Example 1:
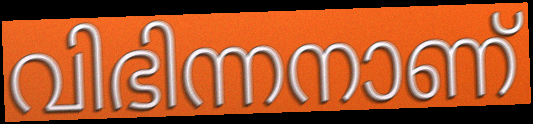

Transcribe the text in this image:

വിഭിന്നനാണ്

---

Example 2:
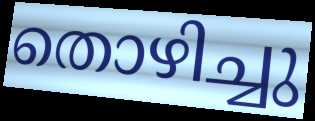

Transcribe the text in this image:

തൊഴിച്ചു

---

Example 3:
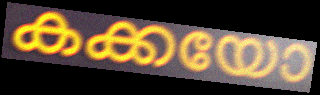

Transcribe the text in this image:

കക്കയോ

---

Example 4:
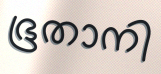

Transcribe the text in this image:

ഭൂതാനി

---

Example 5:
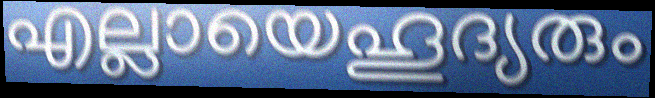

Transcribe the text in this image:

എല്ലായെഹൂദ്യരും